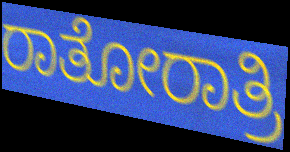
ರಾತೋರಾತ್ರಿ